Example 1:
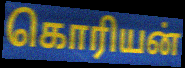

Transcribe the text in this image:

கொரியன்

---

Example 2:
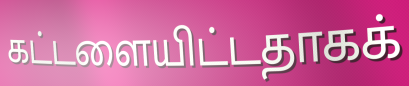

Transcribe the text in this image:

கட்டளையிட்டதாகக்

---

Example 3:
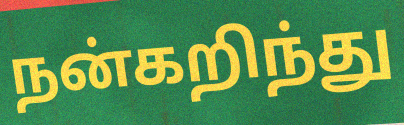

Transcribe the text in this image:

நன்கறிந்து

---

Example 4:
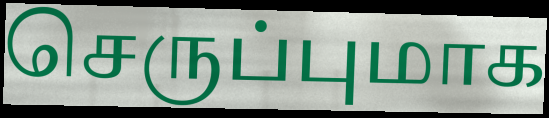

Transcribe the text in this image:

செருப்புமாக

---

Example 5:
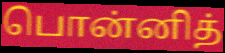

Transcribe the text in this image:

பொன்னித்